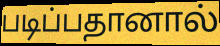
படிப்பதானால்